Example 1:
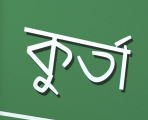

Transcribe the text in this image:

কুৰ্তা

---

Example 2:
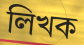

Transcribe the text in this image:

লিখক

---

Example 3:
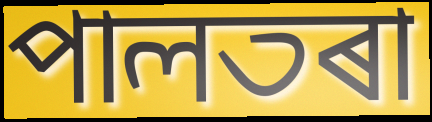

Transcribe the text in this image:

পালতৰা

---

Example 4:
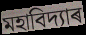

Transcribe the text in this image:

মহাবিদ্যাৰ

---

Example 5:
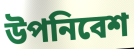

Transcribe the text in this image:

উপনিবেশ